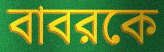
বাবরকে